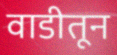
वाडीतून